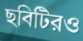
ছবিটিরও